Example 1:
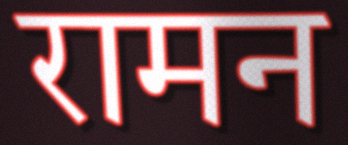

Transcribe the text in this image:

रामन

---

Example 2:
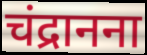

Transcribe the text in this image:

चंद्रानना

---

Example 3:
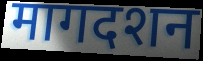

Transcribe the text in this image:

मागदशन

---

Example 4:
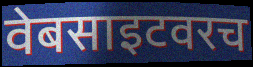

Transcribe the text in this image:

वेबसाइटवरच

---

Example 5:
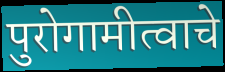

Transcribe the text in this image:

पुरोगामीत्वाचे